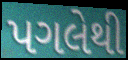
પગલેથી